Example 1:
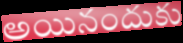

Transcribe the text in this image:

అయినందుకు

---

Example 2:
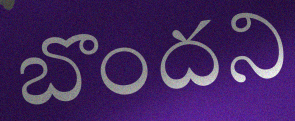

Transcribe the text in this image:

బొందని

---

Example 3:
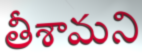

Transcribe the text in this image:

తీశామని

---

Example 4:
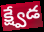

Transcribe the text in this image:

క్ష్వేడ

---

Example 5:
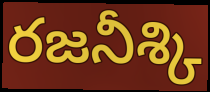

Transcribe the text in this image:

రజనీశ్కి